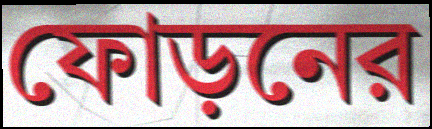
ফোড়নের